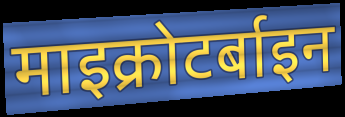
माइक्रोटर्बाइन